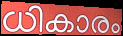
ധികാരം